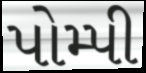
પોમ્પી